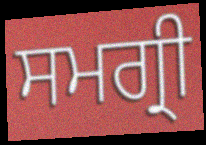
ਸਮਗ੍ਰੀ